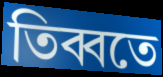
তিব্বতে